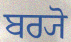
ਬਰ੍ਯੋ